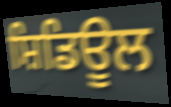
ਸ਼ਿਡਿਊਲ